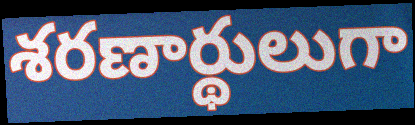
శరణార్థులుగా